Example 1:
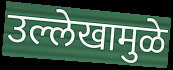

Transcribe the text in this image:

उल्लेखामुळे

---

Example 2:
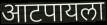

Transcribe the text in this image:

आटपायला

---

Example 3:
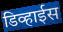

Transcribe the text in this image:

डिव्हाईस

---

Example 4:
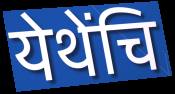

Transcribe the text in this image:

येथेंचि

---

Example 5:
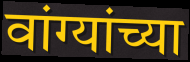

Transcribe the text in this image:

वांग्यांच्या